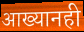
आख्यानही